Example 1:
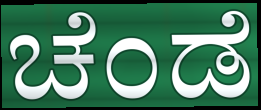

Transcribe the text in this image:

ಚೆಂಡೆ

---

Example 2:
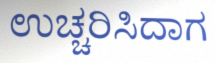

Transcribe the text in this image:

ಉಚ್ಚರಿಸಿದಾಗ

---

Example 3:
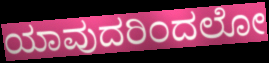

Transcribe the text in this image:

ಯಾವುದರಿಂದಲೋ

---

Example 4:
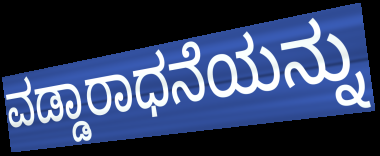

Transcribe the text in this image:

ವಡ್ಡಾರಾಧನೆಯನ್ನು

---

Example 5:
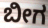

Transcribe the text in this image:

ಬೀಗ